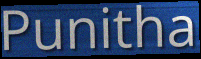
Punitha